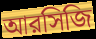
আরসিজি